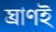
ঘ্রাণই